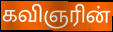
கவிஞரின்